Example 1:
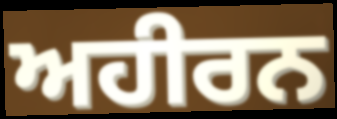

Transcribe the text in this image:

ਅਹੀਰਨ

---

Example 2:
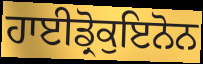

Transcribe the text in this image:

ਹਾਈਡ੍ਰੋਕੁਇਨੋਨ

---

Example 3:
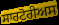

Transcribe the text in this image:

ਸਾਰਟੋਰੀਅਸ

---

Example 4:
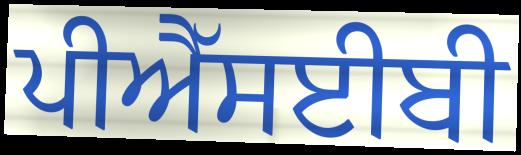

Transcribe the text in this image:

ਪੀਐੱਸਈਬੀ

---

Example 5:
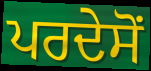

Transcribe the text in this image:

ਪਰਦੇਸੋਂ